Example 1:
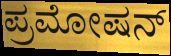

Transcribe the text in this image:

ಪ್ರಮೋಷನ್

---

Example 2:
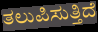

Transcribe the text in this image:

ತಲುಪಿಸುತ್ತಿದೆ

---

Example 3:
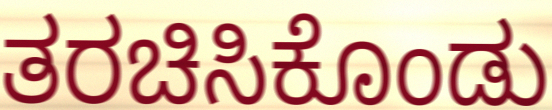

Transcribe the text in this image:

ತರಚಿಸಿಕೊಂಡು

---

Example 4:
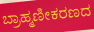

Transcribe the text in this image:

ಬ್ರಾಹ್ಮಣೀಕರಣದ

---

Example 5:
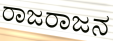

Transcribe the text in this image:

ರಾಜರಾಜನ